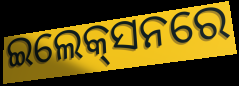
ଇଲେକ୍‍ସନରେ